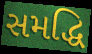
સમદ્ધિ